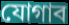
যোগাব